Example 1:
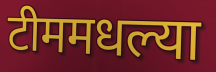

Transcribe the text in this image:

टीममधल्या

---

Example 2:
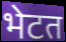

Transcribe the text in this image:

भेटत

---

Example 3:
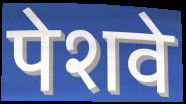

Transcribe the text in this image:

पेशवे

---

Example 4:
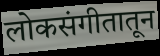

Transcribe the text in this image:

लोकसंगीतातून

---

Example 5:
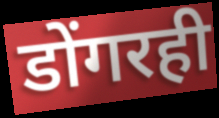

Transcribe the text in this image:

डोंगरही